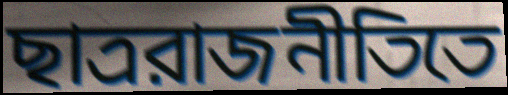
ছাত্ররাজনীতিতে